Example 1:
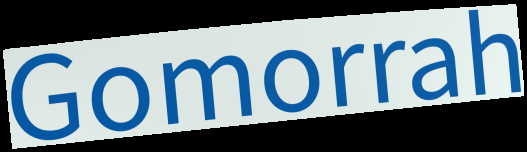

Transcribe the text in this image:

Gomorrah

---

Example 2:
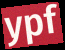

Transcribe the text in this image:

ypf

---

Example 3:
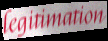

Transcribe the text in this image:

legitimation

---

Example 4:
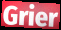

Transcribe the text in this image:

Grier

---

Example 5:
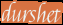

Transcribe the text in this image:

durshet